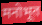
मनोभूत